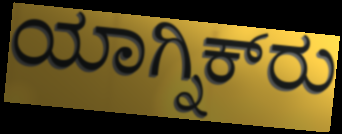
ಯಾಗ್ನಿಕ್‍ರು